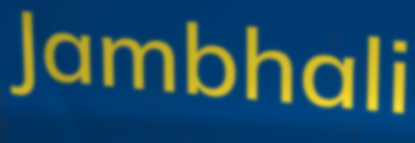
Jambhali